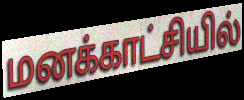
மனக்காட்சியில்